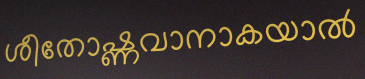
ശീതോഷ്ണവാനാകയാൽ